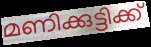
മണിക്കുട്ടിക്ക്